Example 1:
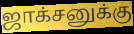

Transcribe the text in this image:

ஜாக்சனுக்கு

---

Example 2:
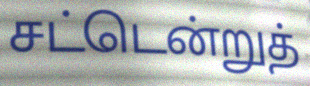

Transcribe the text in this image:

சட்டென்றுத்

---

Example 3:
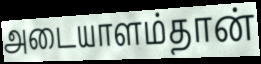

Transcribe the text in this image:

அடையாளம்தான்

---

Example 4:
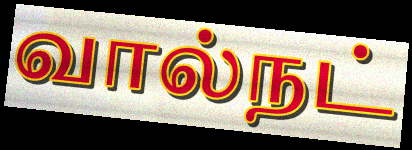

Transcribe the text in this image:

வால்நட்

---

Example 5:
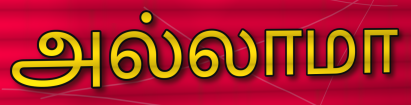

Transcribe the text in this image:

அல்லாமா